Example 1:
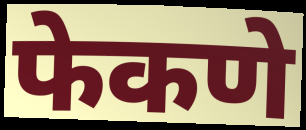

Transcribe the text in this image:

फेकणे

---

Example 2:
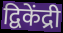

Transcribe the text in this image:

द्विकेंद्री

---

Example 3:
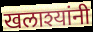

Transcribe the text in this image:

खलाश्यांनी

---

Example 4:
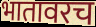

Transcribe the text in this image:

भातावरच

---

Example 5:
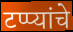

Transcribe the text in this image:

टप्प्यांचे